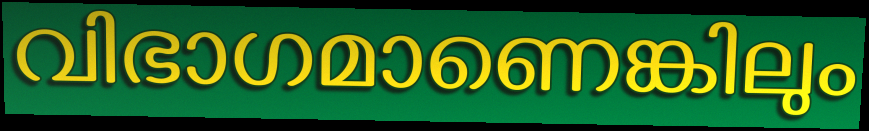
വിഭാഗമാണെങ്കിലും